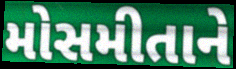
મોસમીતાને